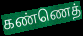
கண்ணெத்